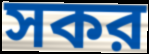
সকর